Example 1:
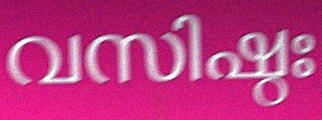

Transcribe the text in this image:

വസിഷ്ഠഃ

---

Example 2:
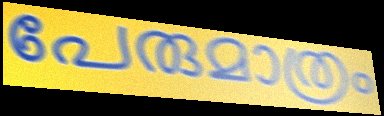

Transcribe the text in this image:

പേരുമാത്രം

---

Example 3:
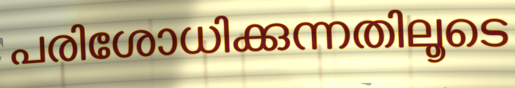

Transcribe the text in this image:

പരിശോധിക്കുന്നതിലൂടെ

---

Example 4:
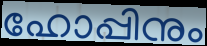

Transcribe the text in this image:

ഹോപ്പിനും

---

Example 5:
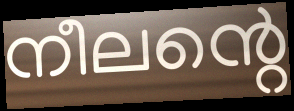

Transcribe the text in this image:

നീലന്റെ